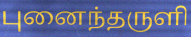
புனைந்தருளி